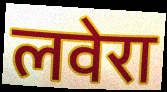
लवेरा